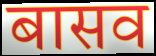
बासव